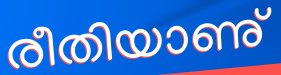
രീതിയാണു്